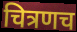
चित्रणच